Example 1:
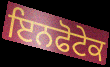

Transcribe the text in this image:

ਇਨਫੋਟੇਕ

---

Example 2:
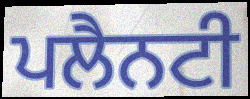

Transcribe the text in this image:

ਪਲੈਨਟੀ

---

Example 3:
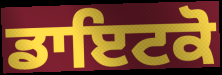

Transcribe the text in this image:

ਡਾਇਟਕੋ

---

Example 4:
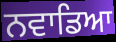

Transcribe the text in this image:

ਨਵਾਡਿਆ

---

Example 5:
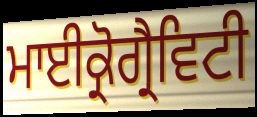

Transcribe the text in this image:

ਮਾਈਕ੍ਰੋਗ੍ਰੈਵਿਟੀ